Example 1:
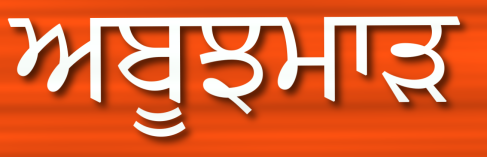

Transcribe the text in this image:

ਅਬੂਝਮਾੜ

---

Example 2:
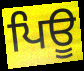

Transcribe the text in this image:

ਪਿਊ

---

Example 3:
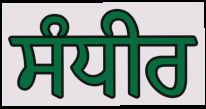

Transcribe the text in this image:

ਸੰਧੀਰ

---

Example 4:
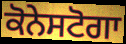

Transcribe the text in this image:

ਕੋਨੇਸਟੋਗਾ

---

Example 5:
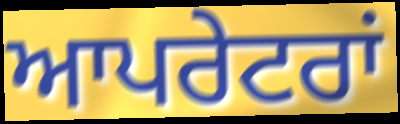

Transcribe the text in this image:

ਆਪਰੇਟਰਾਂ